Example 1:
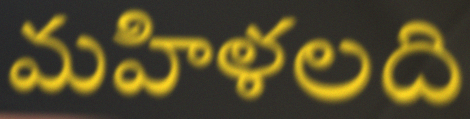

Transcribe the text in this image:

మహిళలది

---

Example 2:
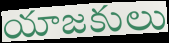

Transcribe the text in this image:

యాజకులు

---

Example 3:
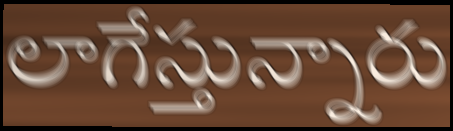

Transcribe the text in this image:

లాగేస్తున్నారు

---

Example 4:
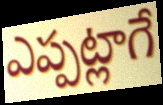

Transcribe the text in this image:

ఎప్పట్లాగే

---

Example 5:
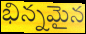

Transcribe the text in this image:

భిన్నమైన